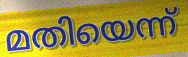
മതിയെന്ന്